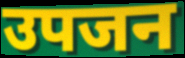
उपजन